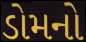
ડોમનો